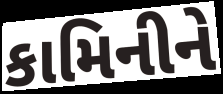
કામિનીને